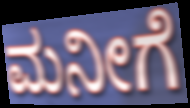
ಮನೀಗೆ